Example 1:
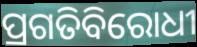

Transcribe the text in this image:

ପ୍ରଗତିବିରୋଧୀ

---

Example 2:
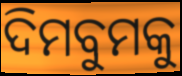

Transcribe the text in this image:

ଦିମବୁମକୁ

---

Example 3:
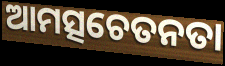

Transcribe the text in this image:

ଆମତ୍ସଚେତନତା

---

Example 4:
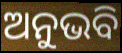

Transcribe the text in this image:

ଅନୁଭବି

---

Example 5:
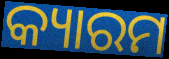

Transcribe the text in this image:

କ୍ୟାରମ